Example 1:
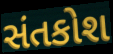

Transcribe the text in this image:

સંતકોશ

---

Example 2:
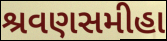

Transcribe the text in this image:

શ્રવણસમીહા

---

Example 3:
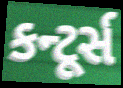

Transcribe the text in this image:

કન્ટૂર્સ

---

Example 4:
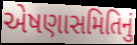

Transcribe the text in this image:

એષણાસમિતિનું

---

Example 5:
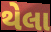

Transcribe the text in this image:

થેલા